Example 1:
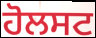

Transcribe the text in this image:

ਹੋਲਸਟ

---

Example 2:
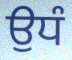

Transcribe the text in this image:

ਉਧੰ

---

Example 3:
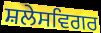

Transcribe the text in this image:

ਸ਼ਲੇਸਵਿਗਰ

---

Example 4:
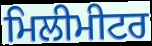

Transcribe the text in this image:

ਮਿਲੀਮੀਟਰ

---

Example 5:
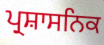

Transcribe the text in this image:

ਪ੍ਰਸ਼ਾਸਨਿਕ